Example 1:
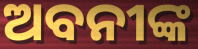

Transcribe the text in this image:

ଅବନୀଙ୍କ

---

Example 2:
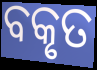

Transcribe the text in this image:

ବକୃତ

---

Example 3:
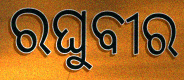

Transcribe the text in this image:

ରଘୁବୀର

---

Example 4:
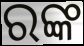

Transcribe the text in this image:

ରଙ୍କ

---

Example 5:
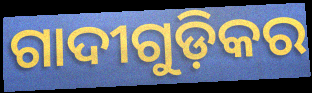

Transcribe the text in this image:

ଗାଦୀଗୁଡ଼ିକର